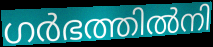
ഗർഭത്തിൽനി